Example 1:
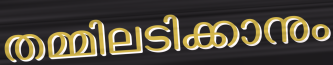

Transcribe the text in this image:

തമ്മിലടിക്കാനും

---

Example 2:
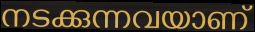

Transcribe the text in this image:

നടക്കുന്നവയാണ്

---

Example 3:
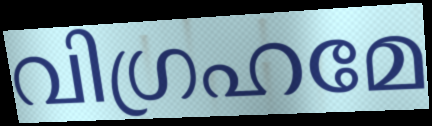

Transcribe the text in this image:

വിഗ്രഹമേ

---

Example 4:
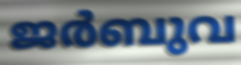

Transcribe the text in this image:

ജർബുവ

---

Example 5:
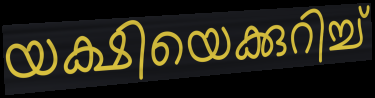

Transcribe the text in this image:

യക്ഷിയെക്കുറിച്ച്